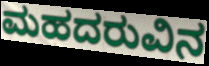
ಮಹದರುವಿನ